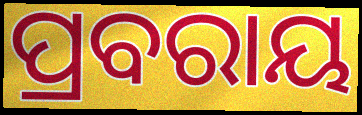
ପ୍ରବରାୟ